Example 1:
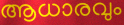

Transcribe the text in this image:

ആധാരവും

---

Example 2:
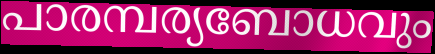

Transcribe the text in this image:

പാരമ്പര്യബോധവും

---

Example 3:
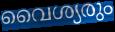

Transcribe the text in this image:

വൈശ്യരും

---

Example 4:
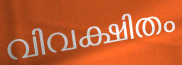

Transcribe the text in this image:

വിവക്ഷിതം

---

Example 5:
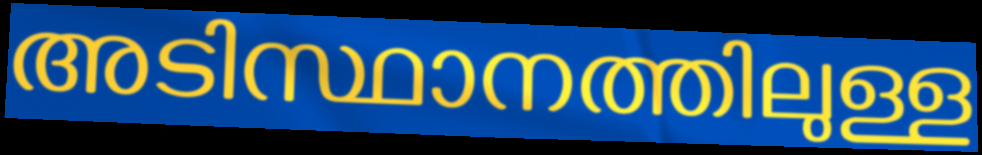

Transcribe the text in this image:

അടിസ്ഥാനത്തിലുള്ള